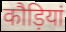
कौड़ियां